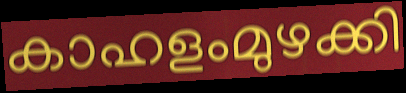
കാഹളംമുഴക്കി